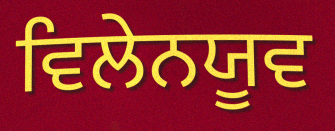
ਵਿਲੇਨਯੂਵ